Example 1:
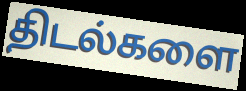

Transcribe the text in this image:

திடல்களை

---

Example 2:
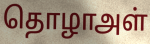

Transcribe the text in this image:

தொழாஅள்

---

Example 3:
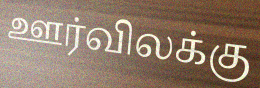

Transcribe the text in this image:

ஊர்விலக்கு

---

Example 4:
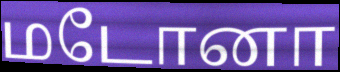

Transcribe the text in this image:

மடோனா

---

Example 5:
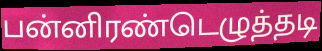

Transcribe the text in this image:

பன்னிரண்டெழுத்தடி